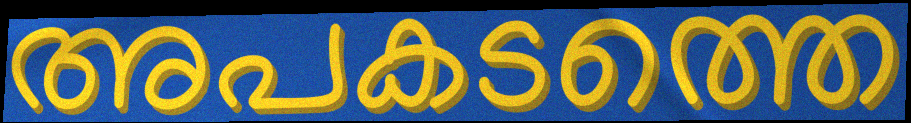
അപകടത്തെ